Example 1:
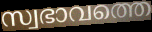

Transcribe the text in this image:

സ്വഭാവത്തെ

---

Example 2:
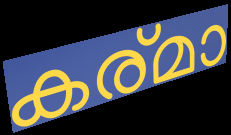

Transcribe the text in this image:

കര്മാ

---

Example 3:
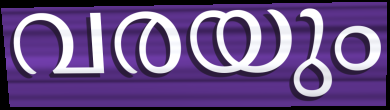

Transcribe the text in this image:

വരയും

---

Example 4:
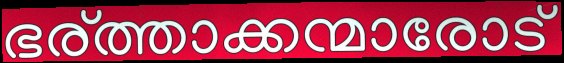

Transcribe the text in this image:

ഭര്ത്താക്കന്മാരോട്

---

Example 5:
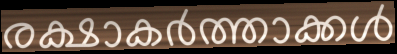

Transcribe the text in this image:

രക്ഷാകർത്താക്കൾ